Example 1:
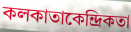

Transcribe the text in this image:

কলকাতাকেন্দ্রিকতা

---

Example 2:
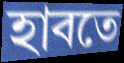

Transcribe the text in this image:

হাবতে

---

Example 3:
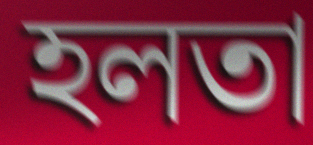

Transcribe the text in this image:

হলতা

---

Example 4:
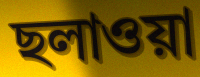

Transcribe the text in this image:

ছলাওয়া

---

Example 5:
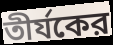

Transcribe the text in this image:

তীর্যকের